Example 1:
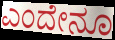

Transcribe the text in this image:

ಎಂದೇನೂ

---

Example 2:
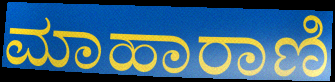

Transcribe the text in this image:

ಮಾಹಾರಾಣಿ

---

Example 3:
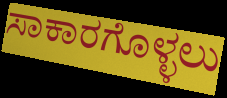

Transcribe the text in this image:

ಸಾಕಾರಗೊಳ್ಳಲು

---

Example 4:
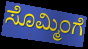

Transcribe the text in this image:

ಸೊಮ್ಮಿಂಗೆ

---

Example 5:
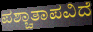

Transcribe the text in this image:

ಪಶ್ಚಾತಾಪವಿದೆ